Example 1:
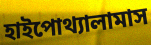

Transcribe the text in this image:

হাইপোথ্যালামাস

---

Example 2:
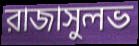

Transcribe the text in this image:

রাজাসুলভ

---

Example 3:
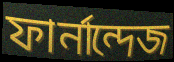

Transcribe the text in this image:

ফার্নান্দেজ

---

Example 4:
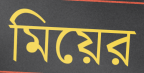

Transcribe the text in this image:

মিয়ের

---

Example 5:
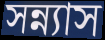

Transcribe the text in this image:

সন্ন্যাস